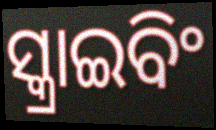
ସ୍କ୍ରାଇବିଂ